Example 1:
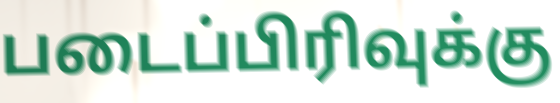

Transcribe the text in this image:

படைப்பிரிவுக்கு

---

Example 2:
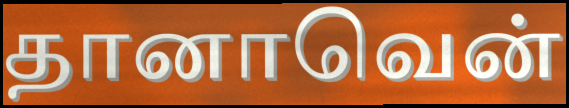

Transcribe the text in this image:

தானாவென்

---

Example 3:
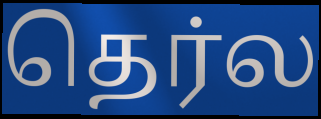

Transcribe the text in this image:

தெர்ல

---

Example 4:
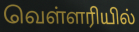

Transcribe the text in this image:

வெள்ளரியில்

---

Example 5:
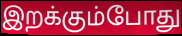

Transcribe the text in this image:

இறக்கும்போது